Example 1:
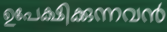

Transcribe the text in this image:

ഉപേക്ഷിക്കുന്നവൻ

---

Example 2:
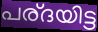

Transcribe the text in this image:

പര്ദയിട്ട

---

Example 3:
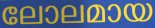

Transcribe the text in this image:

ലോലമായ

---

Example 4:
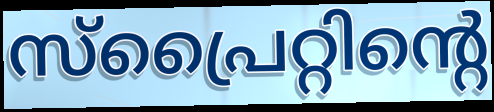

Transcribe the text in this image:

സ്പ്രൈറ്റിന്റെ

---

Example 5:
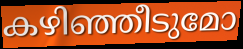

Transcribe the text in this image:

കഴിഞ്ഞീടുമോ